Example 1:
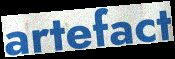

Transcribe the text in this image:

artefact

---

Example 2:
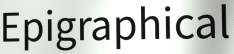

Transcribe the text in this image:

Epigraphical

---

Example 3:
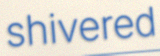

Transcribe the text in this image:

shivered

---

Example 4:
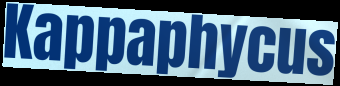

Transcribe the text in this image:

Kappaphycus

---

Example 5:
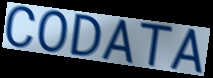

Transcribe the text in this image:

CODATA